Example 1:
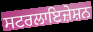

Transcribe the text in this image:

ਸਟਰਲਾਇਜ਼ੇਸ਼ਨ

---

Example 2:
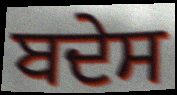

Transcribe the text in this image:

ਬਦੇਸ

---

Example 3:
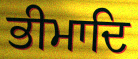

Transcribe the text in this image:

ਭੀਮਾਦਿ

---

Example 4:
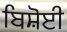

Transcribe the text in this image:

ਬਿਸ਼ੋਈ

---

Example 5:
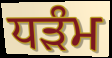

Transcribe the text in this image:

ਧੜੰਮ